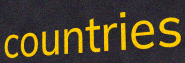
countries